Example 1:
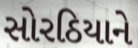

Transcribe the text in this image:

સોરઠિયાને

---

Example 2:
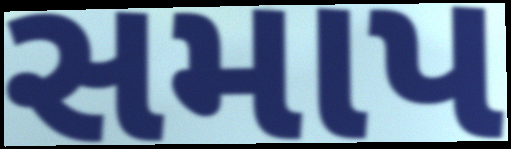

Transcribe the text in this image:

સમાપ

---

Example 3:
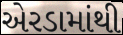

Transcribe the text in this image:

એરડામાંથી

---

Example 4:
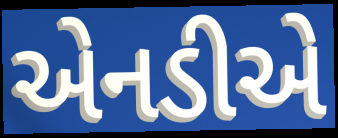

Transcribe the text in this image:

એનડીએ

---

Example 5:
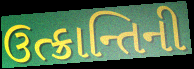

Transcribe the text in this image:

ઉત્ક્રાન્તિની